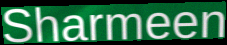
Sharmeen